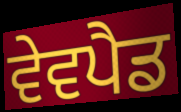
ਵੇਵਪੈਡ